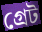
গ্রেট